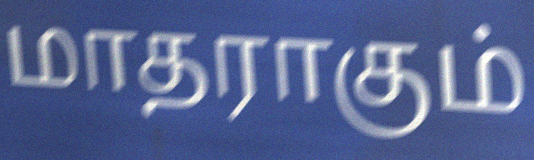
மாதராகும்